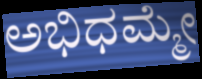
ಅಭಿಧಮ್ಮೇ